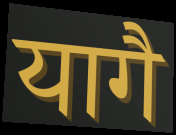
यागै